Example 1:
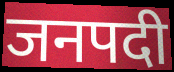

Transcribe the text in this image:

जनपदी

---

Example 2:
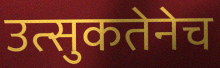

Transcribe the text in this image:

उत्सुकतेनेच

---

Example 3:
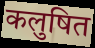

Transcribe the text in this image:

कलुषित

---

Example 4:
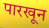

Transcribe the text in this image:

पारखून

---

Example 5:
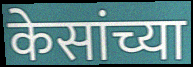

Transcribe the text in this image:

केसांच्या